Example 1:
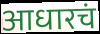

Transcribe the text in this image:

आधारचं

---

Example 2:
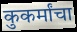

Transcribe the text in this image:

कुकर्मांचा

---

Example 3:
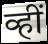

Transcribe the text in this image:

व्हीं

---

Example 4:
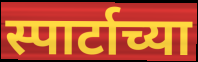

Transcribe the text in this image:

स्पार्टाच्या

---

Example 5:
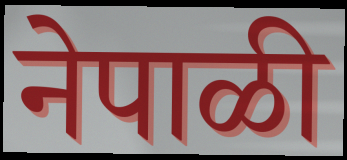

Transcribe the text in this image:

नेपाळी